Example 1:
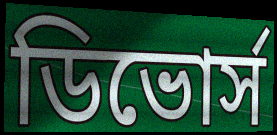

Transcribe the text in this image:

ডিভোর্স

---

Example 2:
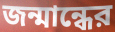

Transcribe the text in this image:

জন্মান্ধের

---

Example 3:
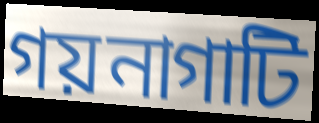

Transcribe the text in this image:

গয়নাগাটি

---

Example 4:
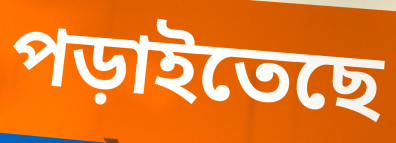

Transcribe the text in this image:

পড়াইতেছে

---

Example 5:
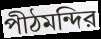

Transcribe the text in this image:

পীঠমন্দির